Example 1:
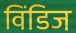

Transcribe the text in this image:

विंडिज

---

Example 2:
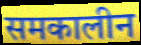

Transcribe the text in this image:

समकालीन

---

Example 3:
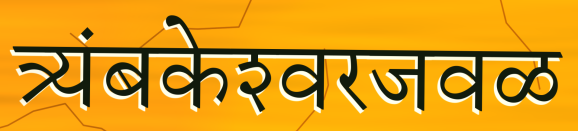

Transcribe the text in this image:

त्र्यंबकेश्वरजवळ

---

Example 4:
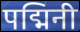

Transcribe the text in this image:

पद्मिनी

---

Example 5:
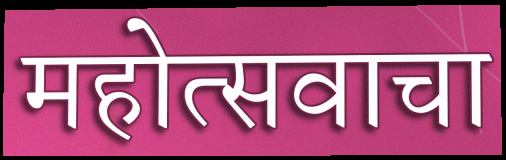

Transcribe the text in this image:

महोत्सवाचा